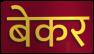
बेकर